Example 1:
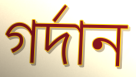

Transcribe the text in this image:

গর্দান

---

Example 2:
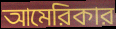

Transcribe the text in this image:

আমেরিকার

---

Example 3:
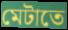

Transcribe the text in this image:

মেটাতে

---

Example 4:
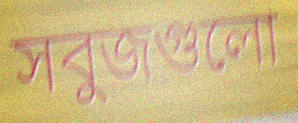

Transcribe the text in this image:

সবুজগুলো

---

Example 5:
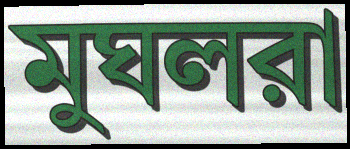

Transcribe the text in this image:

মুঘলরা